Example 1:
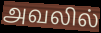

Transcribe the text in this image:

அவலில்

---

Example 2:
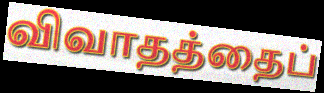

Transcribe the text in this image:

விவாதத்தைப்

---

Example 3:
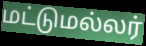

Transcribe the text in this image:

மட்டுமல்லர்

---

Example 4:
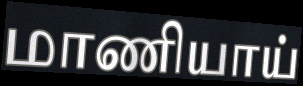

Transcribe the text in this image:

மாணியாய்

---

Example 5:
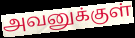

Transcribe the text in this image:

அவனுக்குள்